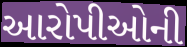
આરોપીઓની